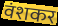
वंशकर